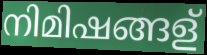
നിമിഷങ്ങള്